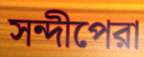
সন্দীপেরা